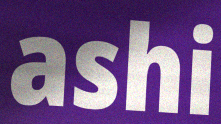
ashi